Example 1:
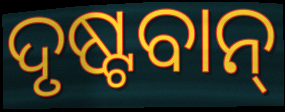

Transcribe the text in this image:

ଦୃଷ୍ଟବାନ୍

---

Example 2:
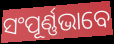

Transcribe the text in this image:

ସଂପୂର୍ଣ୍ଣଭାବେ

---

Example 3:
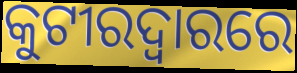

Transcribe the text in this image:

କୁଟୀରଦ୍ୱାରରେ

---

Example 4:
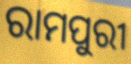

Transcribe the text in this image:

ରାମପୁରୀ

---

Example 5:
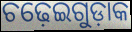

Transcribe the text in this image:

ଚଢ଼େଇଗୁଡ଼ାକ